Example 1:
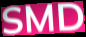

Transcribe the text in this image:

SMD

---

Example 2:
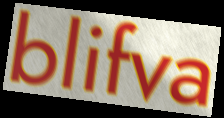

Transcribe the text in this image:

blifva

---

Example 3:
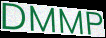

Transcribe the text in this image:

DMMP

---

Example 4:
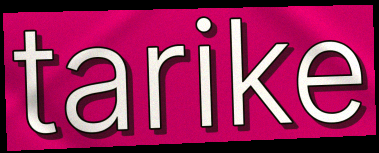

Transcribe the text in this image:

tarike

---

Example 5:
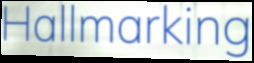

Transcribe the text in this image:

Hallmarking